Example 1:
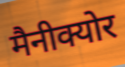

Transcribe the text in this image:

मैनीक्योर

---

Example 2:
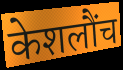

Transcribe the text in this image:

केशलौंच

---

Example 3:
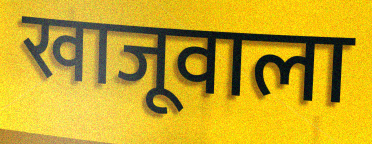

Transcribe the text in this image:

खाजूवाला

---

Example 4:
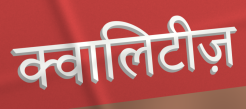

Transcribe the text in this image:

क्वालिटीज़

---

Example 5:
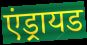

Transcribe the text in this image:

एंड्रायड